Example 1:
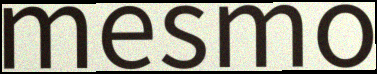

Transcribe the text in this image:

mesmo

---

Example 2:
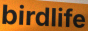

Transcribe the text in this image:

birdlife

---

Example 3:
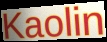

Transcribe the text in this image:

Kaolin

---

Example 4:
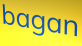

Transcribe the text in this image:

bagan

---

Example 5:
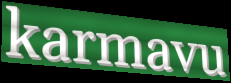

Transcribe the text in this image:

karmavu